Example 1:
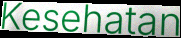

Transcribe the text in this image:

Kesehatan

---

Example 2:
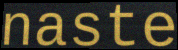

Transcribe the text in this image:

naste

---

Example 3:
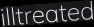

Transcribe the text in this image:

illtreated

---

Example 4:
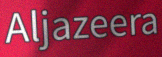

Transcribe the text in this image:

Aljazeera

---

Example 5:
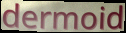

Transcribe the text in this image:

dermoid